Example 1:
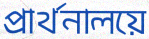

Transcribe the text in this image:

প্রার্থনালয়ে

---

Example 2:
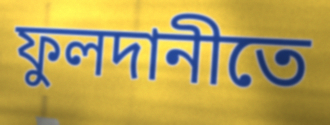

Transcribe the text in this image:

ফুলদানীতে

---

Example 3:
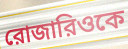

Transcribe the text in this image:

রোজারিওকে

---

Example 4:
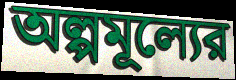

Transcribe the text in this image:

অল্পমূল্যের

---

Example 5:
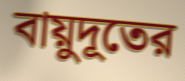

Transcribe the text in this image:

বায়ুদূতের